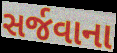
સર્જવાના